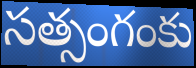
సత్సంగంకు